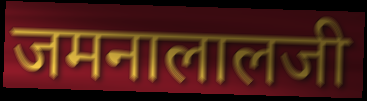
जमनालालजी